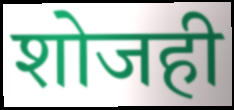
शोजही